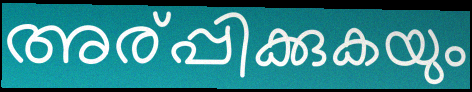
അര്പ്പിക്കുകയും